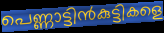
പെണ്ണാട്ടിൻകുട്ടികളെ